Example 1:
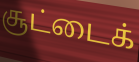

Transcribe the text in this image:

சூட்டைக்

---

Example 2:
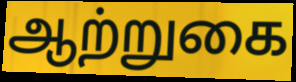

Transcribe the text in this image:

ஆற்றுகை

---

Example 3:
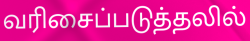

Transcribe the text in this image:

வரிசைப்படுத்தலில்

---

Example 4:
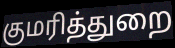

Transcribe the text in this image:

குமரித்துறை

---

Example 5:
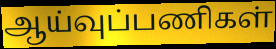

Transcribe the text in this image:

ஆய்வுப்பணிகள்